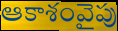
ఆకాశంవైపు